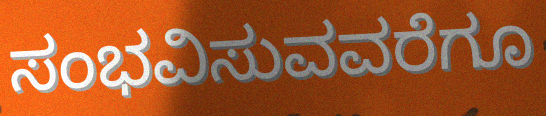
ಸಂಭವಿಸುವವರೆಗೂ